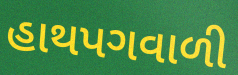
હાથપગવાળી